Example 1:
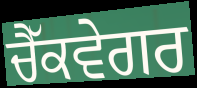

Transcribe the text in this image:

ਚੈੱਕਵੇਗਰ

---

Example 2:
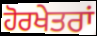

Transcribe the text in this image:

ਹੋਰਖੇਤਰਾਂ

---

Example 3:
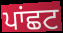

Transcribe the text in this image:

ਪਾਂਛਟ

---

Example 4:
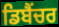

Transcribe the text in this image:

ਡਿਬੈਂਚਰ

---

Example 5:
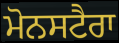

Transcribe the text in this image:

ਮੋਨਸਟੈਰਾ